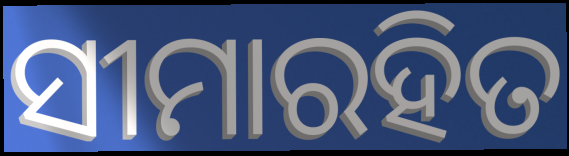
ସୀମାରହିତ